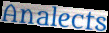
Analects